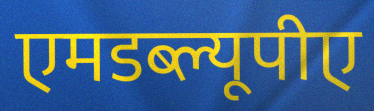
एमडब्ल्यूपीए